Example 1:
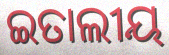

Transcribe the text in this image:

ଇତାଲୀୟ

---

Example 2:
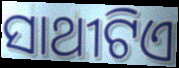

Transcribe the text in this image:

ସାଥୀଟିଏ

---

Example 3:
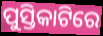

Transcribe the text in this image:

ପୁସ୍ତିକାଟିରେ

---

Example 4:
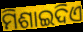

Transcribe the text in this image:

ମିଶାଇଦିଏ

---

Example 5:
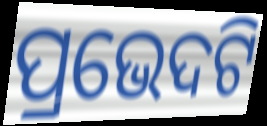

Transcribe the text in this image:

ପ୍ରଭେଦଟି